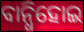
ବାନ୍ଧିହୋଇ